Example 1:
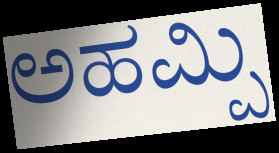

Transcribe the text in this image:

ಅಹಮ್ಪಿ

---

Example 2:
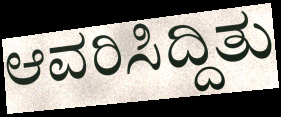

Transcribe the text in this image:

ಆವರಿಸಿದ್ದಿತು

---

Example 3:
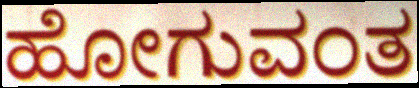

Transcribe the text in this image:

ಹೋಗುವಂತ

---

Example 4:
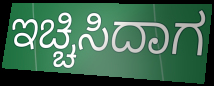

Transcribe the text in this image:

ಇಚ್ಚಿಸಿದಾಗ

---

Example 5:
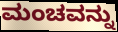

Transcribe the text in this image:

ಮಂಚವನ್ನು